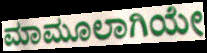
ಮಾಮೂಲಾಗಿಯೇ